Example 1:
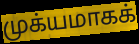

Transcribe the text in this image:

முக்யமாகக்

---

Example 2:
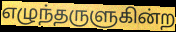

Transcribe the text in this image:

எழுந்தருளுகின்ற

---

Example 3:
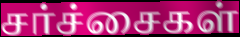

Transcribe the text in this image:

சர்ச்சைகள்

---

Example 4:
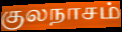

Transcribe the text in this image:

குலநாசம்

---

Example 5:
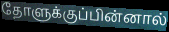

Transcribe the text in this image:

தோளுக்குப்பின்னால்